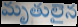
మృతులైన